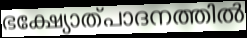
ഭക്ഷ്യോത്പാദനത്തിൽ